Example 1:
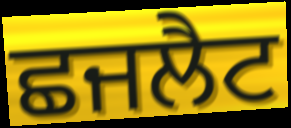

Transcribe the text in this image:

ਛਜਲੈਟ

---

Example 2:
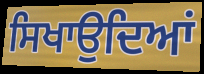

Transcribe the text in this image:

ਸਿਖਾਉਦਿਆਂ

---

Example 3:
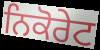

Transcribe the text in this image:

ਨਿਕੋਰੇਟ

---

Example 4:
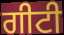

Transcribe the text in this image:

ਗੀਟੀ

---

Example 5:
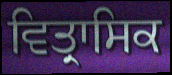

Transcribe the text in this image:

ਵਿਤ੍ਰਾਸਿਕ